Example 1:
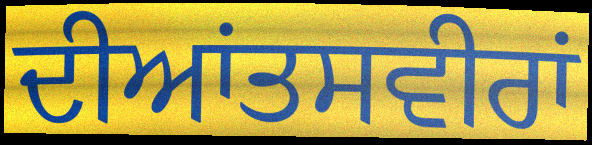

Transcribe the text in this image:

ਦੀਆਂਤਸਵੀਰਾਂ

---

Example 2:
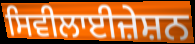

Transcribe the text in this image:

ਸਿਵੀਲਾਈਜ਼ੇਸ਼ਨ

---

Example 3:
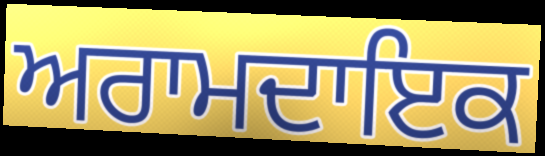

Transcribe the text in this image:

ਅਰਾਮਦਾਇਕ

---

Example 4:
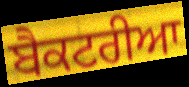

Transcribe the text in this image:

ਬੈਕਟਰੀਆ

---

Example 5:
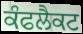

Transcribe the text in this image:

ਕੰਫਲੈਕਟ